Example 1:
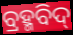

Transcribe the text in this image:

ବ୍ରହ୍ମବିଦ୍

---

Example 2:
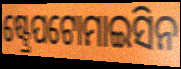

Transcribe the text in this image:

ଷ୍ଟ୍ରେପଟୋମାଇସିନ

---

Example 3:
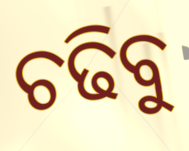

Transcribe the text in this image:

ଚଢିବୁ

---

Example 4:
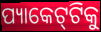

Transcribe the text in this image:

ପ୍ୟାକେଟ୍‌ଟିକୁ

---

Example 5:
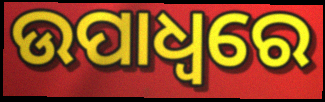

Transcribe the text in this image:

ଉପାଧ୍ଵରେ